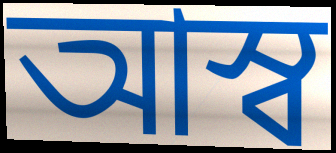
আস্ব